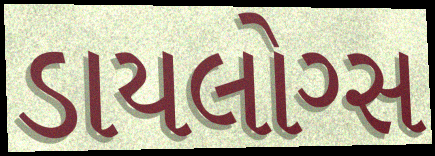
ડાયલોગ્સ